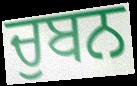
ਚੁਬਨ